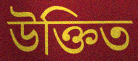
উক্তিত